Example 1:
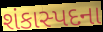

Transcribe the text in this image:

શંકાસ્પદના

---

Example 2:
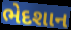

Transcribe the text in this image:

ભેદશાન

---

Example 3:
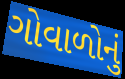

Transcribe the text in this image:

ગોવાળોનું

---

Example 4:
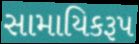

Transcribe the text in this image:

સામાયિકરૂપ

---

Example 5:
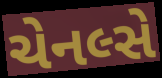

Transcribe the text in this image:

ચેનલ્સે